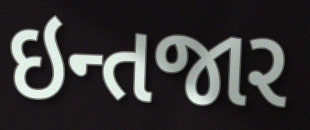
ઇન્તજાર